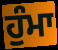
ਹੁੰਮਾ